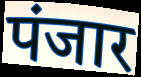
पंजार